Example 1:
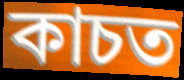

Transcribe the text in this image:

কাচত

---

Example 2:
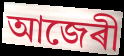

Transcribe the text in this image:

আজেৰী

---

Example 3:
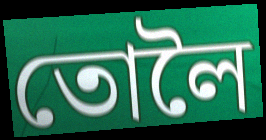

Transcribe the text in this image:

তোলৈ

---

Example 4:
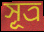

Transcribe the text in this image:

সূত্ৰ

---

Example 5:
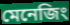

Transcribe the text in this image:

মেনেজিং